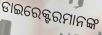
ଡାଇରେକ୍ଟରମାନଙ୍କ